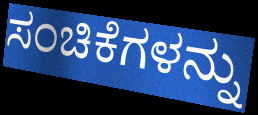
ಸಂಚಿಕೆಗಳನ್ನು